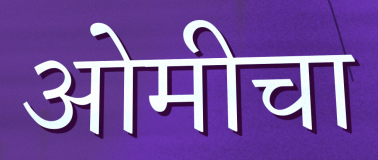
ओमीचा